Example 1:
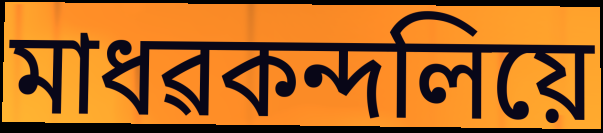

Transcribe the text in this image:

মাধৱকন্দলিয়ে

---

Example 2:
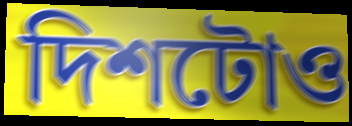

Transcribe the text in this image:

দিশটোও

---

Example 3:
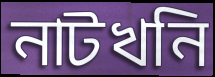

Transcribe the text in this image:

নাটখনি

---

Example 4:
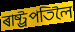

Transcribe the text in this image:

ৰাষ্ট্ৰপতিলৈ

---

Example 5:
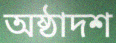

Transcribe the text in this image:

অষ্ঠাদশ